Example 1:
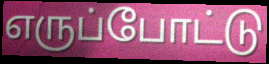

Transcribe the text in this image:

எருப்போட்டு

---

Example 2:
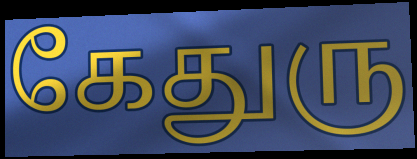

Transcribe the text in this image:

கேதுரு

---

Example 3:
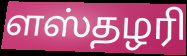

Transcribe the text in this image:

ளஸ்தழரி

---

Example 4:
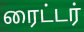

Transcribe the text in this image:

ரைட்டர்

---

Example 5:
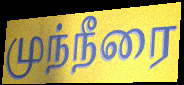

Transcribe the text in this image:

முந்நீரை